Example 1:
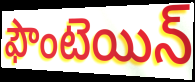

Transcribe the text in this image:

ఫౌంటెయిన్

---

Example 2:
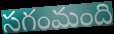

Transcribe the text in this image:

సగంమంది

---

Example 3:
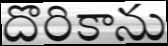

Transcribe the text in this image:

దొరికాను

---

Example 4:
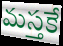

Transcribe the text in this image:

మస్తకే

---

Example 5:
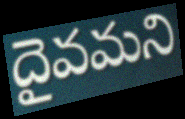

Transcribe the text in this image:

దైవమని